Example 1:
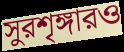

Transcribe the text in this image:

সুরশৃঙ্গারও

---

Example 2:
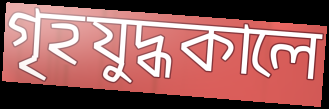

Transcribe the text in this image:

গৃহযুদ্ধকালে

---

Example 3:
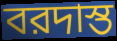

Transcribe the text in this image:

বরদাস্ত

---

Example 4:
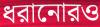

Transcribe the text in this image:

ধরানোরও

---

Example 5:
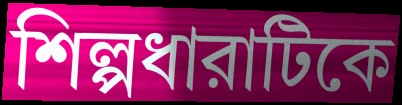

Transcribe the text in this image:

শিল্পধারাটিকে